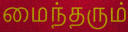
மைந்தரும்